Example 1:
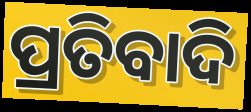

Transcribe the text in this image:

ପ୍ରତିବାଦି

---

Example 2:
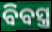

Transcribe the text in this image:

ବିବସ୍ତ୍ର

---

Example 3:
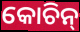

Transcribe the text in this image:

କୋଚିନ୍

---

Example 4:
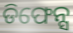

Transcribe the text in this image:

ଡିଫେନ୍ସ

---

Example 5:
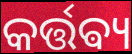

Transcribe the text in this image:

କର୍ତ୍ତଵ୍ୟ